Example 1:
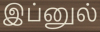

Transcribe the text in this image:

இப்னுல்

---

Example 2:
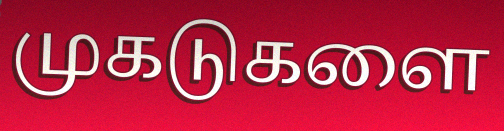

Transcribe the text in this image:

முகடுகளை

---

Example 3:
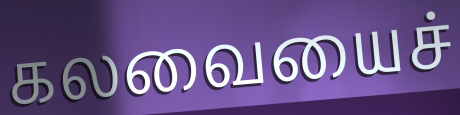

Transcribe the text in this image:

கலவையைச்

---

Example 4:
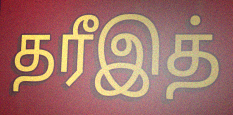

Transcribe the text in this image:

தரீஇத்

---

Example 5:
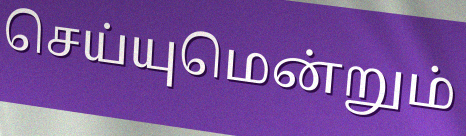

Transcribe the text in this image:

செய்யுமென்றும்